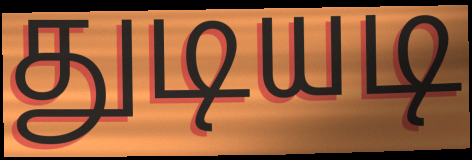
துடியடி